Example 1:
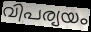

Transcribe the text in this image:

വിപര്യയം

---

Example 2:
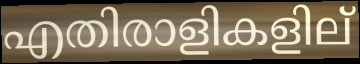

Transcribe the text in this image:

എതിരാളികളില്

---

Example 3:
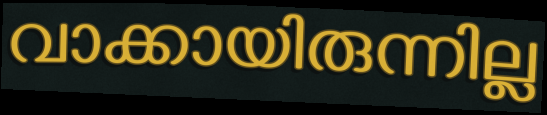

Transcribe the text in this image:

വാക്കായിരുന്നില്ല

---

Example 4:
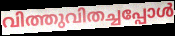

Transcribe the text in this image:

വിത്തുവിതച്ചപ്പോൾ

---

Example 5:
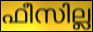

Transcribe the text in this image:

ഫീസില്ല